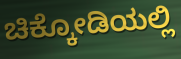
ಚಿಕ್ಕೋಡಿಯಲ್ಲಿ